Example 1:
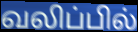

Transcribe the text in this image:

வலிப்பில்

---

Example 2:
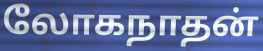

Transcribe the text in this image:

லோகநாதன்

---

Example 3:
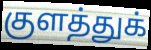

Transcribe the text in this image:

குளத்துக்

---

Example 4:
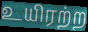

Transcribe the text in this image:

உயிரற்ற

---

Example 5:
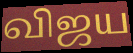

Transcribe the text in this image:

விஜய